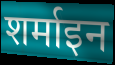
शर्माइन